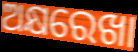
ଅକ୍ଷରେଖା